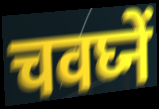
चवघ्नें